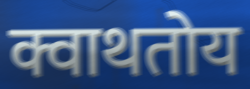
क्वाथतोय